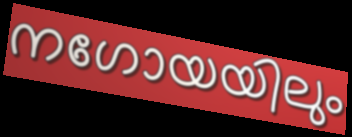
നഗോയയിലും